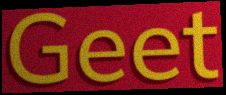
Geet